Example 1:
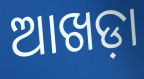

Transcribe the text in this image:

ଆଖଡ଼ା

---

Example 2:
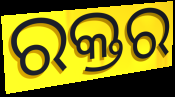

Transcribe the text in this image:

ରକ୍ତର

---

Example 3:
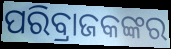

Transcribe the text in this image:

ପରିବ୍ରାଜକଙ୍କର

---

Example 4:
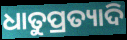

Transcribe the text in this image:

ଧାତୁପ୍ରତ୍ୟାଦି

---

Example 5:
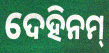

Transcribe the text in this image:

ଦେହିନମ୍